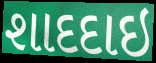
શાદદાઇ